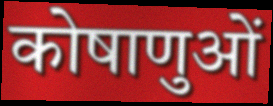
कोषाणुओं